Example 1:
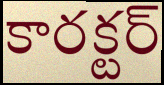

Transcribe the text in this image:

కారక్టర్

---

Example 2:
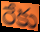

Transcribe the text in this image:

రేకు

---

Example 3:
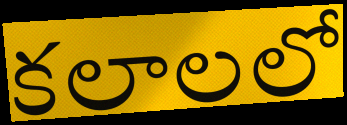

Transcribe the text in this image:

కలాలలో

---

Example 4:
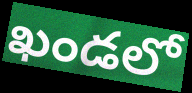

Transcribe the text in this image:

ఖండలో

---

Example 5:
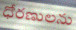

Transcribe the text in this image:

ధోరణులను